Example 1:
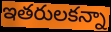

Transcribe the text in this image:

ఇతరులకన్నా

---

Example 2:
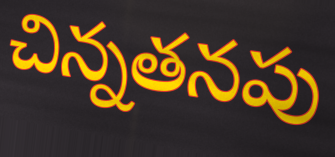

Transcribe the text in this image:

చిన్నతనపు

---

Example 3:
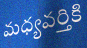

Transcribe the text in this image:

మధ్యవర్తికి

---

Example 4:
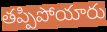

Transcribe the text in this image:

తప్పిపోయారు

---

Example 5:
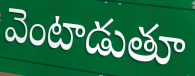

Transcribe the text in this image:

వెంటాడుతూ